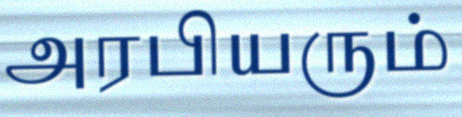
அரபியரும்